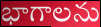
భాగాలను